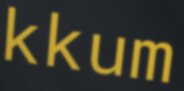
kkum